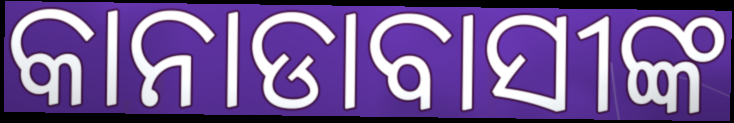
କାନାଡାବାସୀଙ୍କ